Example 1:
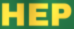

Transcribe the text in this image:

HEP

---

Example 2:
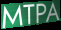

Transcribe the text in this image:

MTPA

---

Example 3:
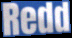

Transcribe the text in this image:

Redd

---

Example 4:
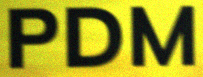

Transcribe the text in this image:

PDM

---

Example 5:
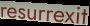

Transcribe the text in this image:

resurrexit